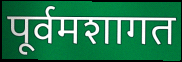
पूर्वमशागत